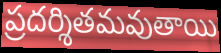
ప్రదర్శితమవుతాయి